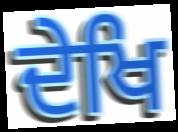
ਦੇਖਿ